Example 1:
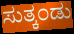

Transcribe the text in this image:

ಸುತ್ಕಂಡು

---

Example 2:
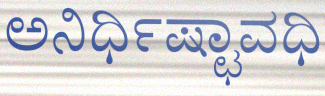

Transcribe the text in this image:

ಅನಿರ್ಧಿಷ್ಟಾವಧಿ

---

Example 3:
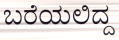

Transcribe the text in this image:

ಬರೆಯಲಿದ್ದ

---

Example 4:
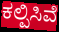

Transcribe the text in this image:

ಕಲ್ಪಿಸಿವೆ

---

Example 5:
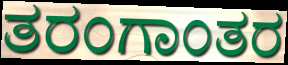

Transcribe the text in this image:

ತರಂಗಾಂತರ